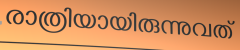
രാത്രിയായിരുന്നുവത്